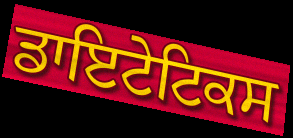
ਡਾਇਟੇਟਿਕਸ